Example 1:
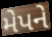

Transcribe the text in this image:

મેપને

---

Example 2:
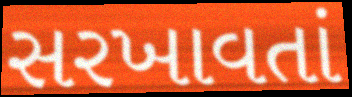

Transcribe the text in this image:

સરખાવતાં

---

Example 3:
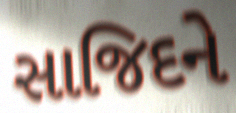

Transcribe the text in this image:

સાજિદને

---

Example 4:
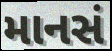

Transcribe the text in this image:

માનસં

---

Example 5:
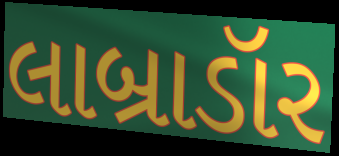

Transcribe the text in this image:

લાબ્રાડૉર